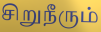
சிறுநீரும்